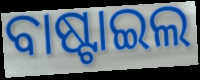
ବାଷ୍ଟାଇଲ